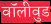
वॉलीवुड